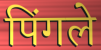
पिंगले